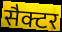
सैक्टर